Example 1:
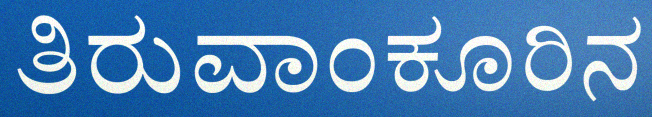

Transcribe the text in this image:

ತಿರುವಾಂಕೂರಿನ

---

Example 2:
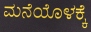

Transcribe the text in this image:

ಮನೆಯೊಳಕ್ಕೆ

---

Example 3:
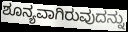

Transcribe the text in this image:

ಶೂನ್ಯವಾಗಿರುವುದನ್ನು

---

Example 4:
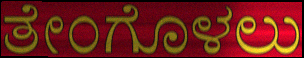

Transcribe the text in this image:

ತೇಂಗೊಳಲು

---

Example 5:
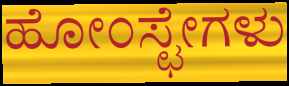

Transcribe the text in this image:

ಹೋಂಸ್ಟೇಗಳು